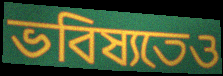
ভবিষ্যতেও